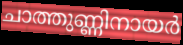
ചാത്തുണ്ണിനായർ